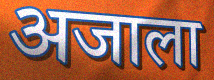
अजाला